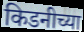
किडनीच्या